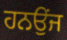
ਹਨਉਂਜ